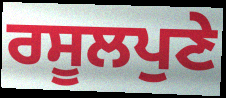
ਰਸੂਲਪੁਣੇ